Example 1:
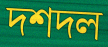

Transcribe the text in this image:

দশদল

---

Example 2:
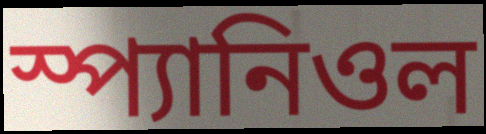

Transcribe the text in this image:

স্প্যানিওল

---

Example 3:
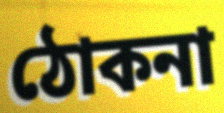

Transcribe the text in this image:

ঠোকনা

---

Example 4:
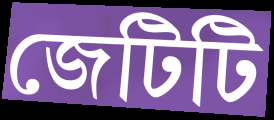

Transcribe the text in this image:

জেটিটি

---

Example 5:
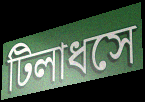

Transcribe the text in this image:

টিলাধসে